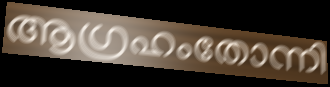
ആഗ്രഹംതോന്നി